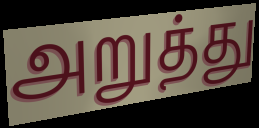
அறுத்து